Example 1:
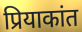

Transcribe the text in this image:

प्रियाकांत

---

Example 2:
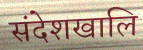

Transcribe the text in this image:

संदेशखालि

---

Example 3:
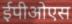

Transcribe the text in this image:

ईपीओएस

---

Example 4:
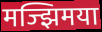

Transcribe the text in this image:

मज्झिमया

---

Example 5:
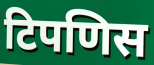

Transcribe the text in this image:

टिपणिस